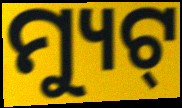
ମ୍ୟୁଟ୍